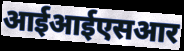
आईआईएसआर